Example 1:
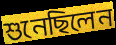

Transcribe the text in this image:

শুনেছিলেন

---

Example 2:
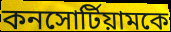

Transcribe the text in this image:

কনসোর্টিয়ামকে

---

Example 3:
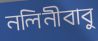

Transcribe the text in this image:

নলিনীবাবু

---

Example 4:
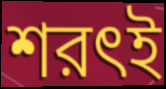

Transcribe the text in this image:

শরৎই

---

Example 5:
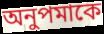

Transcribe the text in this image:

অনুপমাকে